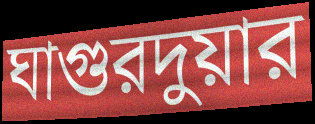
ঘাগুরদুয়ার